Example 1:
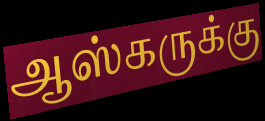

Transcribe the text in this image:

ஆஸ்கருக்கு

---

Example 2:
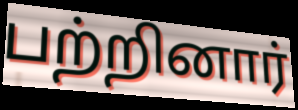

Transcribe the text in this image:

பற்றினார்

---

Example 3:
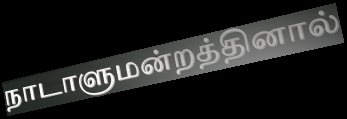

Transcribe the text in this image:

நாடாளுமன்றத்தினால்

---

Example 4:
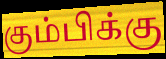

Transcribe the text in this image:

கும்பிக்கு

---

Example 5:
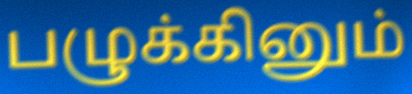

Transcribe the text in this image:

பழுக்கினும்